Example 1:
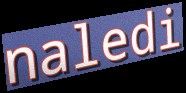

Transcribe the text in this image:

naledi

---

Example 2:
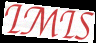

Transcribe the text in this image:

IMIS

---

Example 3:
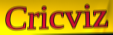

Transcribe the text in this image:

Cricviz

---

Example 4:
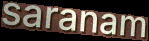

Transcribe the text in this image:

saranam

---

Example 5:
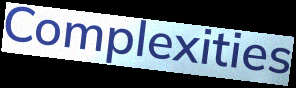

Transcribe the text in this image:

Complexities